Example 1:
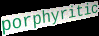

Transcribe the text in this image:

porphyritic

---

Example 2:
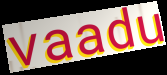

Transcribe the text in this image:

vaadu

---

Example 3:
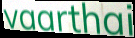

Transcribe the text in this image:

vaarthai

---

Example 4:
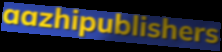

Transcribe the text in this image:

aazhipublishers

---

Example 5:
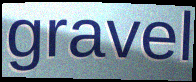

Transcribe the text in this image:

gravel